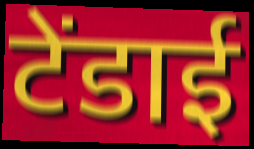
टेंडाई